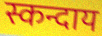
स्कन्दाय